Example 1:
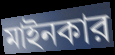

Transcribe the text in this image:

মাইনকার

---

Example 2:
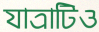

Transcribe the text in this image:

যাত্রাটিও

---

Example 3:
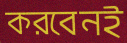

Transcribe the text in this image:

করবেনই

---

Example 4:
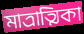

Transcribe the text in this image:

মাত্রাত্মিকা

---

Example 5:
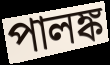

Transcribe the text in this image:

পালঙ্ক